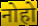
नोहो